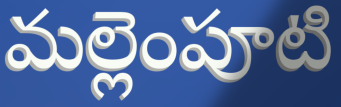
మల్లెంపూటి